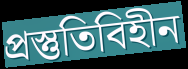
প্রস্তুতিবিহীন